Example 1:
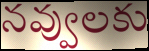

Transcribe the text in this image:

నవ్వులకు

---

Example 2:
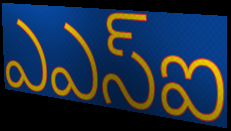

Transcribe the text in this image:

ఎఎస్ఐ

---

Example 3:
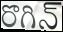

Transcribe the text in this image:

రొగిన్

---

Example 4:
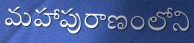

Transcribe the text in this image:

మహాపురాణంలోని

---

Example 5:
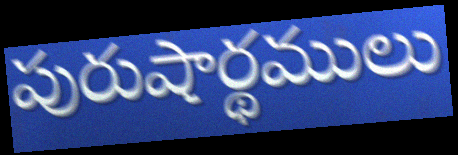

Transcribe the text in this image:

పురుషార్థములు